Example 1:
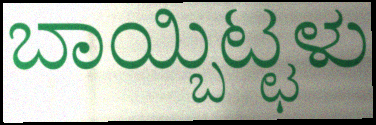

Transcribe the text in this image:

ಬಾಯ್ಬಿಟ್ಟಳು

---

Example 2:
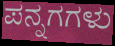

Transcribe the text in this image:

ಪನ್ನಗಗಳು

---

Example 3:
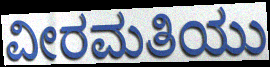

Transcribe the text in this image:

ವೀರಮತಿಯು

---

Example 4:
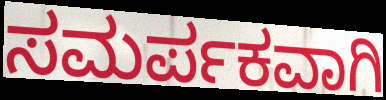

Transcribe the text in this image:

ಸಮರ್ಪಕವಾಗಿ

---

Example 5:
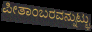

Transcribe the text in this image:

ಪೀತಾಂಬರವನ್ನುಟ್ಟು